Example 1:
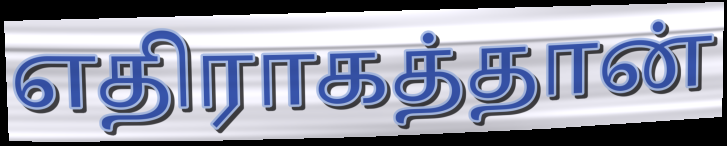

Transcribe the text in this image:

எதிராகத்தான்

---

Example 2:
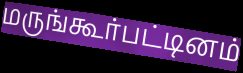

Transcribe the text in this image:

மருங்கூர்பட்டினம்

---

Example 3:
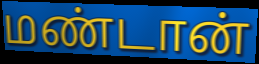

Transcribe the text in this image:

மண்டான்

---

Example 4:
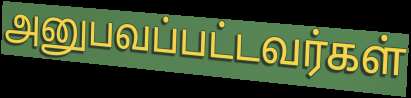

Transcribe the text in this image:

அனுபவப்பட்டவர்கள்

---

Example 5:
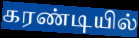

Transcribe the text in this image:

கரண்டியில்